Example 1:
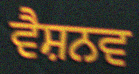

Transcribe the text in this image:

ਵੈਸ਼ਨਵ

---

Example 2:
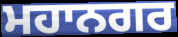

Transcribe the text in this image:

ਮਹਾਨਗਰ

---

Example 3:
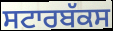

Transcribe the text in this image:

ਸਟਾਰਬੱਕਸ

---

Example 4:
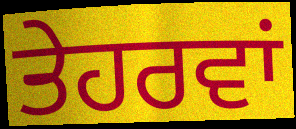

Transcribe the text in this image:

ਤੇਹਰਵਾਂ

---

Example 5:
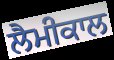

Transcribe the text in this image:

ਲੈਮੀਕਾਲ